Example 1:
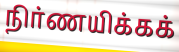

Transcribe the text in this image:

நிர்ணயிக்கக்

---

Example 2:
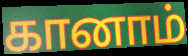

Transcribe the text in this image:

கானாம்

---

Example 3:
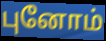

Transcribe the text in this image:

புனோம்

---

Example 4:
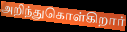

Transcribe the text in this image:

அறிந்துகொள்கிறார்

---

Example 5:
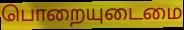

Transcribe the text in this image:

பொறையுடைமை